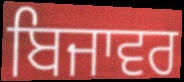
ਬਿਜਾਵਰ